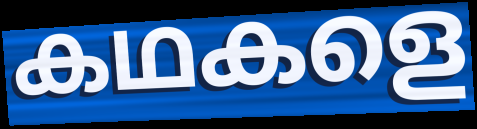
കഥകളെ